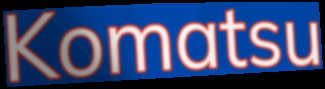
Komatsu